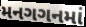
મનગગનમાં